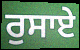
ਰੁਸਾਏ